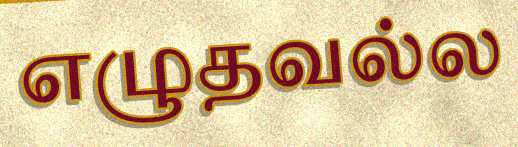
எழுதவல்ல